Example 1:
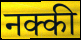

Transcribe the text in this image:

नक्की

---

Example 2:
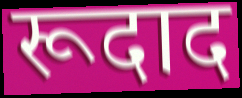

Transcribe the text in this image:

रूदाद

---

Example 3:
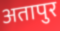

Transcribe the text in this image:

अतापुर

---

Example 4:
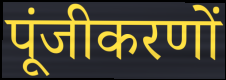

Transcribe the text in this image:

पूंजीकरणों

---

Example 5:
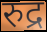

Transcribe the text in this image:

रुद्र